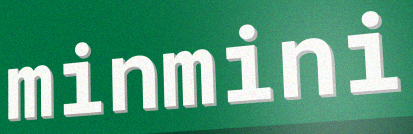
minmini